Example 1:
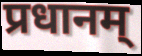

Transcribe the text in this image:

प्रधानम्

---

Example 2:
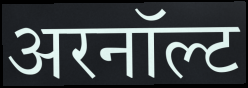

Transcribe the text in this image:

अरनॉल्ट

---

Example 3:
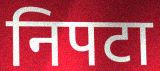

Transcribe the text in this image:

निपटा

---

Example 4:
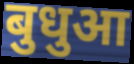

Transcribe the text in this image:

बुधुआ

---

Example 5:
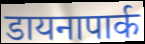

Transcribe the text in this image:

डायनापार्क